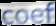
coef